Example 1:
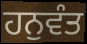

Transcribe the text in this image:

ਹਨੁਵੰਤ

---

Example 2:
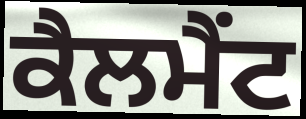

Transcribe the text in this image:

ਕੈਲਮੈਂਟ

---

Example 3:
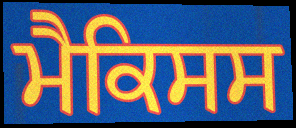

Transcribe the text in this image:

ਮੈਕਿਸਸ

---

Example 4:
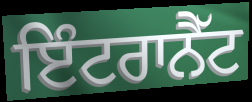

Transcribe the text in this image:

ਇੰਟਰਾਨੈੱਟ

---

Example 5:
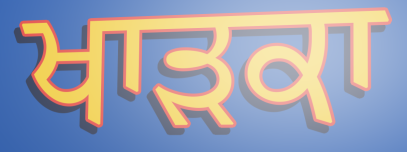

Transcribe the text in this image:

ਖਾੜਕਾ